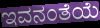
ಇವನಂತೆಯೆ